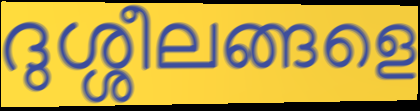
ദുശ്ശീലങ്ങളെ